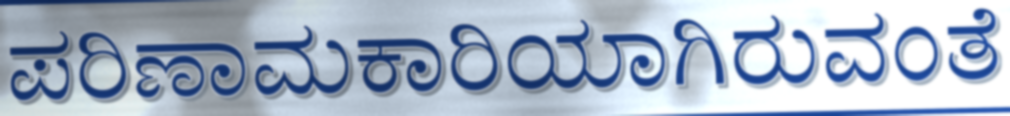
ಪರಿಣಾಮಕಾರಿಯಾಗಿರುವಂತೆ